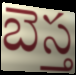
బెస్త